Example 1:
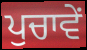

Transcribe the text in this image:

ਪੁਚਾਵੇਂ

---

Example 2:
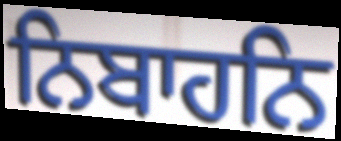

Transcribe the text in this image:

ਨਿਬਾਹਨਿ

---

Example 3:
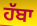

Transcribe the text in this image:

ਹੱਬਾ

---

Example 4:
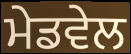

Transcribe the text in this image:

ਮੇਡਵੇਲ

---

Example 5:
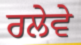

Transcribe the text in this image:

ਰਲੇਵੇ